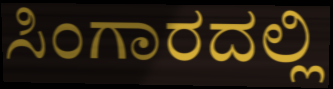
ಸಿಂಗಾರದಲ್ಲಿ